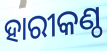
ହାରୀକଣ୍ଠ